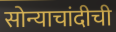
सोन्याचांदीची